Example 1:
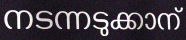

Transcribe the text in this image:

നടന്നടുക്കാന്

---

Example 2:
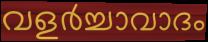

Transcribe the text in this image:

വളർച്ചാവാദം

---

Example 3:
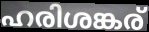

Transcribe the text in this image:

ഹരിശങ്കര്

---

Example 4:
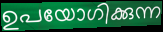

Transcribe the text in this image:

ഉപയോഗിക്കുന്ന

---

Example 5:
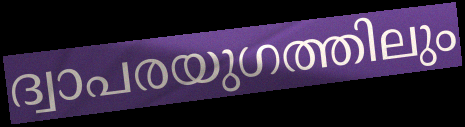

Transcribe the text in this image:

ദ്വാപരയുഗത്തിലും